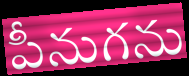
పీనుగను